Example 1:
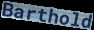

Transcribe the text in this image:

Barthold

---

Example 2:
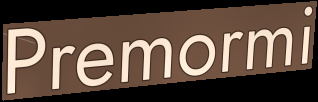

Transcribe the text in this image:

Premormi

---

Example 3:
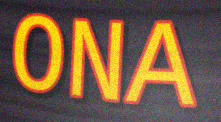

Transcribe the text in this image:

ONA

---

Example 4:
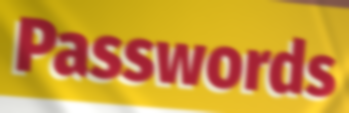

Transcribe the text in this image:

Passwords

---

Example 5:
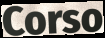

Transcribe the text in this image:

Corso